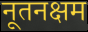
नूतनक्षम